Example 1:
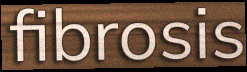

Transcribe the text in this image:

fibrosis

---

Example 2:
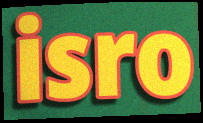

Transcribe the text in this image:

isro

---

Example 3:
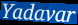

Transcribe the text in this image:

Yadavar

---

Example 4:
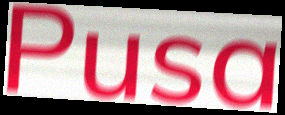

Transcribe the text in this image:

Pusa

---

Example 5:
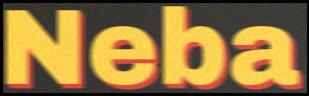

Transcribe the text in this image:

Neba